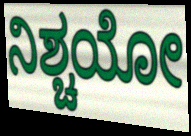
ನಿಶ್ಚಯೋ